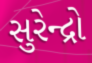
સુરેન્દ્રો